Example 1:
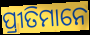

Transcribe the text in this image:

ପ୍ରୀତିମାନେ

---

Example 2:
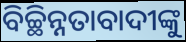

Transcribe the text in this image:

ବିଚ୍ଛିନ୍ନତାବାଦୀଙ୍କୁ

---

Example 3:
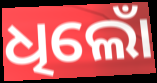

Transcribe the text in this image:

ଧିଲୋଁ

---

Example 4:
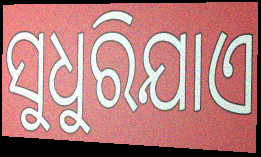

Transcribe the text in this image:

ସୁଧୁରିଯାଏ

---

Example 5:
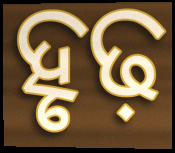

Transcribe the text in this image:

ହୃଢ଼